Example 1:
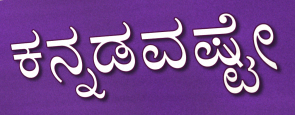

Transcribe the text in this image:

ಕನ್ನಡವಷ್ಟೇ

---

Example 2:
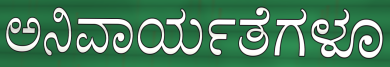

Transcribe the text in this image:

ಅನಿವಾರ್ಯತೆಗಳೂ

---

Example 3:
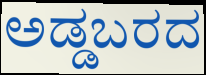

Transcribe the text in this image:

ಅಡ್ಡಬರದ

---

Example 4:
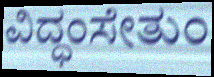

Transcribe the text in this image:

ವಿದ್ಧಂಸೇತುಂ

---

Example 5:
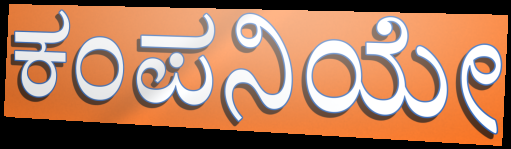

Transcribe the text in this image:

ಕಂಪನಿಯೇ